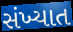
સંખ્યાત